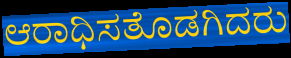
ಆರಾಧಿಸತೊಡಗಿದರು